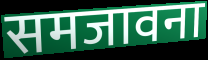
समजावना